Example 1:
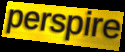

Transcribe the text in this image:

perspire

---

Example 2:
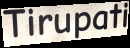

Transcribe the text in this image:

Tirupati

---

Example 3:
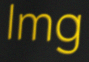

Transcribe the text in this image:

Img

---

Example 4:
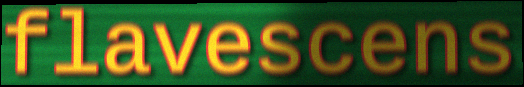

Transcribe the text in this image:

flavescens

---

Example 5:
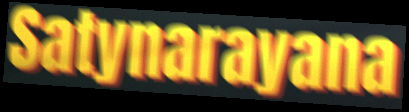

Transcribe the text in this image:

Satynarayana